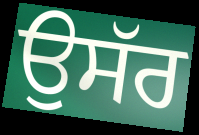
ਉਸੱਰ